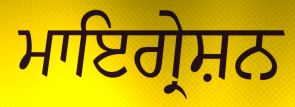
ਮਾਇਗ੍ਰੇਸ਼ਨ